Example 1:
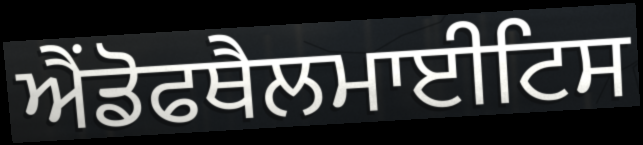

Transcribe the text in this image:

ਐਂਡੋਫਥੈਲਮਾਈਟਿਸ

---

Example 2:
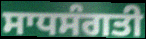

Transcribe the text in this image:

ਸਾਧਸੰਗਤੀ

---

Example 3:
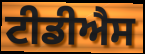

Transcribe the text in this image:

ਟੀਡੀਐਸ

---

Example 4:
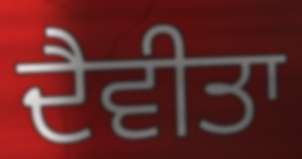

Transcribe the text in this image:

ਦੈਵੀਤਾ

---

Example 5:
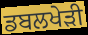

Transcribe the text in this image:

ਡਬਲਖੇੜੀ